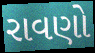
રાવણો